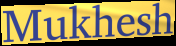
Mukhesh